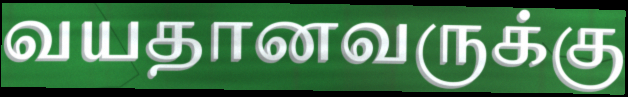
வயதானவருக்கு